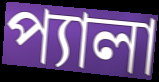
প্যালা